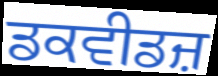
ਡਕਵੀਡਜ਼